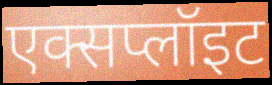
एक्सप्लॉइट